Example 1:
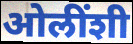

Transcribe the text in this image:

ओलींशी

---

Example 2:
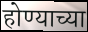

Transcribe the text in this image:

होण्याच्या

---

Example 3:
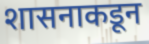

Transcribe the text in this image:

शासनाकडून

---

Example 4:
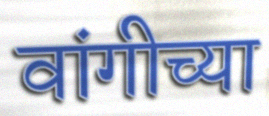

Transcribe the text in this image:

वांगीच्या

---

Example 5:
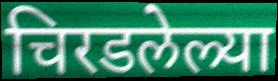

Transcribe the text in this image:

चिरडलेल्या